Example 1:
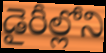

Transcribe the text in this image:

డైరీల్లోని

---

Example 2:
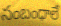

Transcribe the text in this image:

సంబంధాలే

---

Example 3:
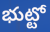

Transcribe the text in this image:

భుట్టో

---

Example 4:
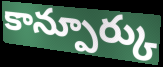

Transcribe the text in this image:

కాన్పూర్కు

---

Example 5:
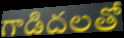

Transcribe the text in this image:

గాడిదలతో